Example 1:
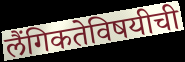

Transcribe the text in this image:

लैंगिकतेविषयीची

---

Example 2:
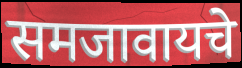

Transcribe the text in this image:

समजावायचे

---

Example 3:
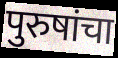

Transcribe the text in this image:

पुरुषांचा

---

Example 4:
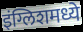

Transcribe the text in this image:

इंग्लिशमध्ये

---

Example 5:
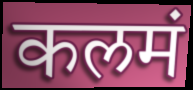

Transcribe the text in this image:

कलमं